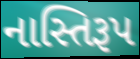
નાસ્તિરૂપ